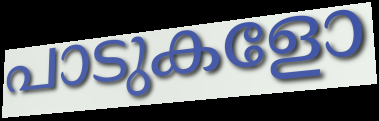
പാടുകളോ